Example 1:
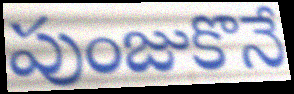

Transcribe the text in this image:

పుంజుకొనే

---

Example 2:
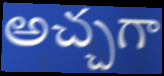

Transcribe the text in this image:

అచ్చగా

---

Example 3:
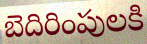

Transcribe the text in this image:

బెదిరింపులకి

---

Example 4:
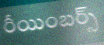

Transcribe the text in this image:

రీయింబర్స్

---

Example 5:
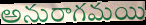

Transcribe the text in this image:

అనురాగమయి